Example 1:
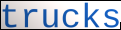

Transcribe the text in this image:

trucks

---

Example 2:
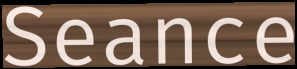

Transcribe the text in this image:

Seance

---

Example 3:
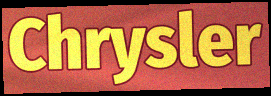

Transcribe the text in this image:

Chrysler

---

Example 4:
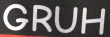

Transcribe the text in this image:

GRUH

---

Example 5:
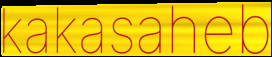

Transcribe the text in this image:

kakasaheb